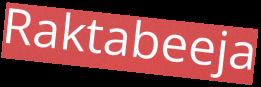
Raktabeeja